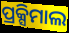
ପ୍ରକ୍ସିମାଲ